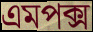
এমপক্স